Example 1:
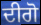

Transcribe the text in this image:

ਦੀਗੋ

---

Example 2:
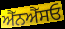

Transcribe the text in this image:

ਐੱਨਐੱਸਓ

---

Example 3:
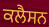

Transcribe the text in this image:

ਕਲੈਸਨ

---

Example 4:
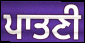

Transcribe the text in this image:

ਪਾਤਣੀ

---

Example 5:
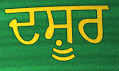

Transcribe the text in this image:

ਦਸ਼ੂਰ